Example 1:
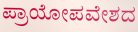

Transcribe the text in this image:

ಪ್ರಾಯೋಪವೇಶದ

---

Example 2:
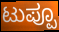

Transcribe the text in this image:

ಟುಪ್ಪೂ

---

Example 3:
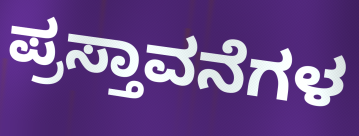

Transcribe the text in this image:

ಪ್ರಸ್ತಾವನೆಗಳ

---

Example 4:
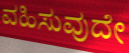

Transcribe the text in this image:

ವಹಿಸುವುದೇ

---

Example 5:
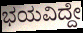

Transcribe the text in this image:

ಭಯವಿದ್ದೇ